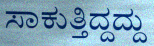
ಸಾಕುತ್ತಿದ್ದದ್ದು